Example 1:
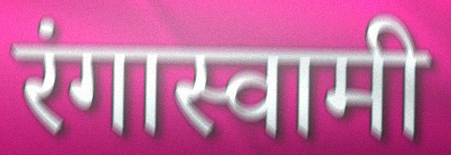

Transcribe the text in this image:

रंगास्वामी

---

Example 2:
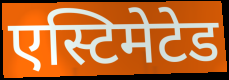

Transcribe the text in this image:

एस्टिमेटेड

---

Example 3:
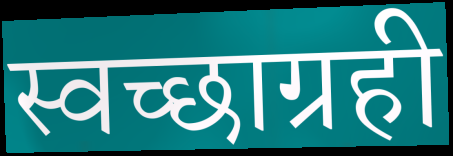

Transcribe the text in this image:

स्वच्छाग्रही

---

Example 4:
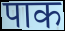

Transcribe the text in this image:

पाक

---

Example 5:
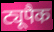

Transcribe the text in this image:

ट्यूपैक